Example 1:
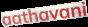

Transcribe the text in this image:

aathavani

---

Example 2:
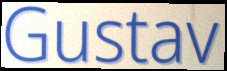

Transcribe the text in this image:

Gustav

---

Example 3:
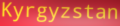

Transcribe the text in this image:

Kyrgyzstan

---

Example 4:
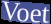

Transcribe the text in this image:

Voet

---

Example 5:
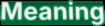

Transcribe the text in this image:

Meaning